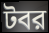
টবর